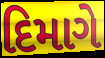
દિમાગે